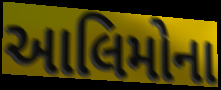
આલિમોના